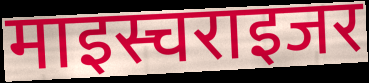
माइस्चराइजर